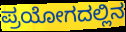
ಪ್ರಯೋಗದಲ್ಲಿನ